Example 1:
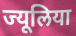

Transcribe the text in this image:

ज्यूलिया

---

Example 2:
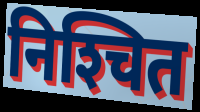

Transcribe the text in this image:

निश्‍चित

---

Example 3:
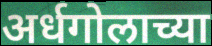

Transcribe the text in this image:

अर्धगोलाच्या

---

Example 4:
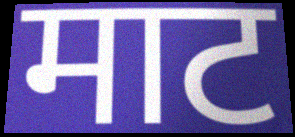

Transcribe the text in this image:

माट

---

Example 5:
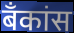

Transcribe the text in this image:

बँकांस